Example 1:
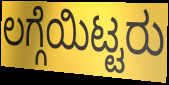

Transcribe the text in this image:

ಲಗ್ಗೆಯಿಟ್ಟರು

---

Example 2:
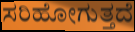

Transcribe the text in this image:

ಸರಿಹೋಗುತ್ತದೆ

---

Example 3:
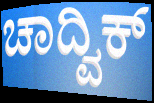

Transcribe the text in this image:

ಚಾದ್ವಿಕ್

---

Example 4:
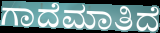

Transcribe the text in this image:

ಗಾದೆಮಾತಿದೆ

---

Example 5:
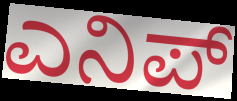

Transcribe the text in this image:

ಎನಿಪ್